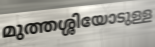
മുത്തശ്ശിയോടുള്ള